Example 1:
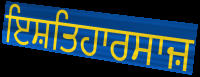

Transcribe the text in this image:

ਇਸ਼ਤਿਹਾਰਸਾਜ਼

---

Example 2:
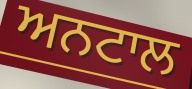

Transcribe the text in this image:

ਅਨਟਾਲ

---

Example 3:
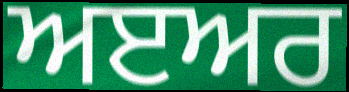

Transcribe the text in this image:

ਅੲਅਰ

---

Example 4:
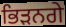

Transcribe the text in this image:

ਭਿੜਨਗੇ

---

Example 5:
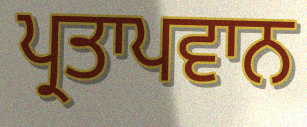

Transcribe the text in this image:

ਪ੍ਰਤਾਪਵਾਨ